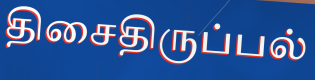
திசைதிருப்பல்